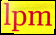
lpm